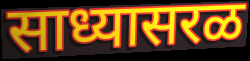
साध्यासरळ